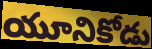
యూనికోడు